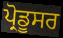
ਪ੍ਰੋਡੂਸਰ